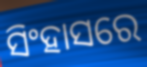
ସିଂହାସରେ